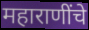
महाराणींचे